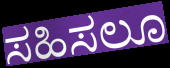
ಸಹಿಸಲೂ